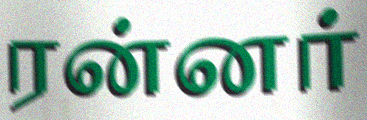
ரன்னர்